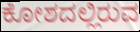
ಕೋಶದಲ್ಲಿರುವ